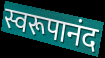
स्‍वरूपानंद